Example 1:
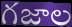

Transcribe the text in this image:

గజాల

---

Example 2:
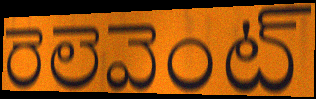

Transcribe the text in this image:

రెలెవెంట్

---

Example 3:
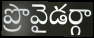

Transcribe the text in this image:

ప్రొవైడర్గా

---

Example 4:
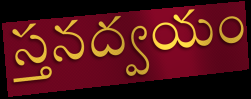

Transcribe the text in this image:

స్తనద్వయం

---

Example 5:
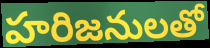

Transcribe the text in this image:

హరిజనులతో